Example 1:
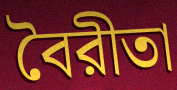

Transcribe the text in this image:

বৈরীতা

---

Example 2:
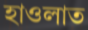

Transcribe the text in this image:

হাওলাত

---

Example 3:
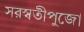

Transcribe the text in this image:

সরস্বতীপুজো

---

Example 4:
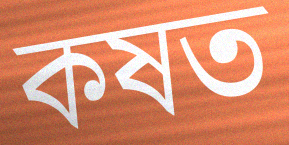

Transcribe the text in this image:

কষত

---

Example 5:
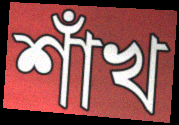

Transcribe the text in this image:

শাঁখ